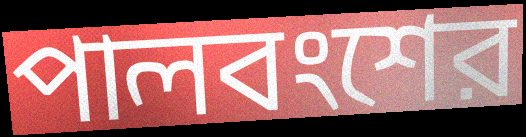
পালবংশের